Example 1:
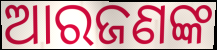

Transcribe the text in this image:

ଆରଜଣଙ୍କ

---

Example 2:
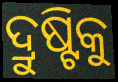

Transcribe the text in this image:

ଦ୍ରୁଷ୍ଟିକୁ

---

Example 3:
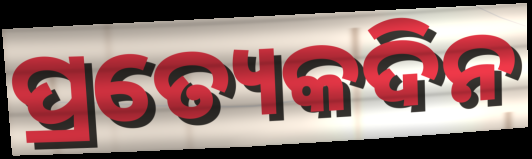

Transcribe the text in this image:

ପ୍ରତ୍ୟେକଦିନ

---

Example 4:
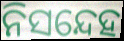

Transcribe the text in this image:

ନିସନ୍ଦେହ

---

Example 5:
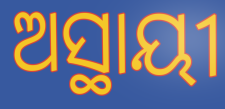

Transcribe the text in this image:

ଅସ୍ଥାୟୀ